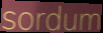
sordum